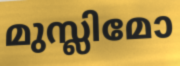
മുസ്ലിമോ